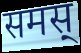
समस्